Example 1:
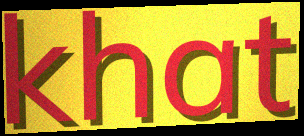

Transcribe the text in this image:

khat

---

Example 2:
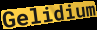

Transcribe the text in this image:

Gelidium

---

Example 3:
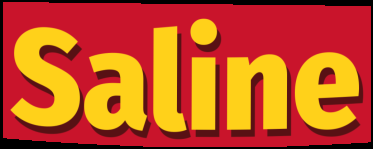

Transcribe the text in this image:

Saline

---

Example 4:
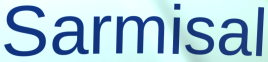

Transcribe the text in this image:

Sarmisal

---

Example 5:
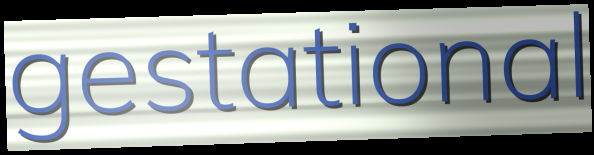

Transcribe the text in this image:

gestational